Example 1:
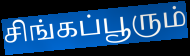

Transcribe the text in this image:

சிங்கப்பூரும்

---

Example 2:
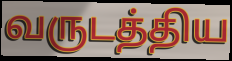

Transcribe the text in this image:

வருடத்திய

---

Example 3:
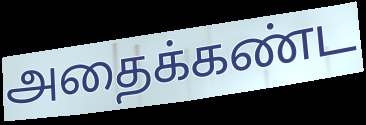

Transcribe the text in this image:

அதைக்கண்ட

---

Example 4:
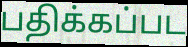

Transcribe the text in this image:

பதிக்கப்பட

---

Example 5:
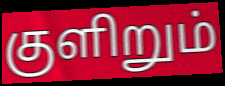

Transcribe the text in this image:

குளிறும்